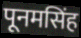
पूनमसिंह